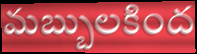
మబ్బులకింద